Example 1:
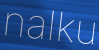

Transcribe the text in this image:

nalku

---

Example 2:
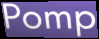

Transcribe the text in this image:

Pomp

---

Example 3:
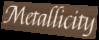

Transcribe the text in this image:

Metallicity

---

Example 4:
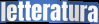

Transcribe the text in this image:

letteratura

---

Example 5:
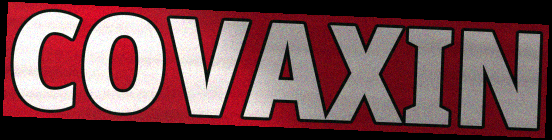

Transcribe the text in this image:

COVAXIN